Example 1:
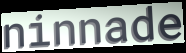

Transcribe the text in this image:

ninnade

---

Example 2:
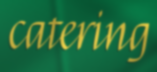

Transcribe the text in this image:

catering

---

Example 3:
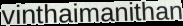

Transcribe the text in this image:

vinthaimanithan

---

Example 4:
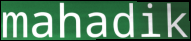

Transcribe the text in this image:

mahadik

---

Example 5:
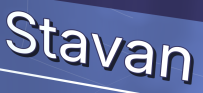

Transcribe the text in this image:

Stavan